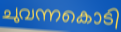
ചുവന്നകൊടി